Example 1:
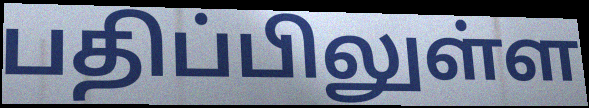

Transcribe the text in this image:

பதிப்பிலுள்ள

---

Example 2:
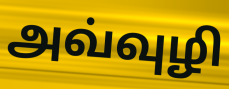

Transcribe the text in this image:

அவ்வுழி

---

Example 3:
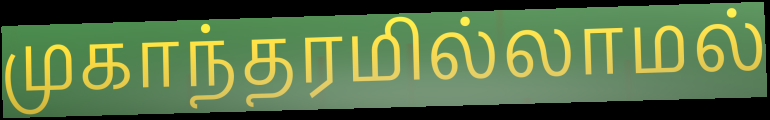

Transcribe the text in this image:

முகாந்தரமில்லாமல்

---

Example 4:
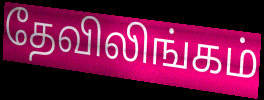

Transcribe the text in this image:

தேவிலிங்கம்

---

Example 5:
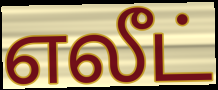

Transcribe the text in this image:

எலீட்